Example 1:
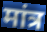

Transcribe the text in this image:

मांत्र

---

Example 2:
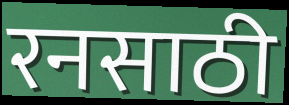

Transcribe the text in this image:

रनसाठी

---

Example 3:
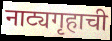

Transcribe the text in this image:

नाट्यगृहाची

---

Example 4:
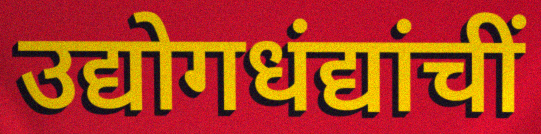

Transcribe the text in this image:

उद्योगधंद्यांचीं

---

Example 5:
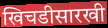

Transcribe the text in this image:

खिचडीसारखी